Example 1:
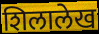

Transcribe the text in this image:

शिलालेख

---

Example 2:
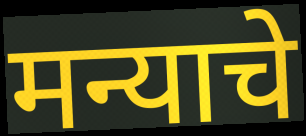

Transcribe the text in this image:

मन्याचे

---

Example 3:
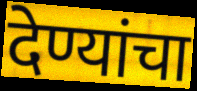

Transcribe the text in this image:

देण्यांचा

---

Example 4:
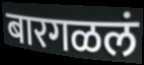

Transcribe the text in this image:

बारगळलं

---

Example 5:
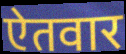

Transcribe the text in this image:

ऐतवार